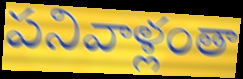
పనివాళ్లంతా